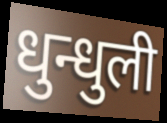
धुन्धुली